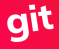
git